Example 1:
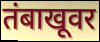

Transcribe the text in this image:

तंबाखूवर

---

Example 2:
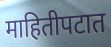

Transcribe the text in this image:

माहितीपटात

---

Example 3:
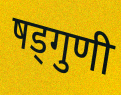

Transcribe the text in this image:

षड्गुणी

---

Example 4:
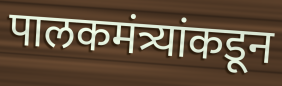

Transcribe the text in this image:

पालकमंत्र्यांकडून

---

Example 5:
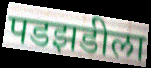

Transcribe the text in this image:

पडझडीला